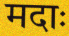
मदाः